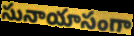
సునాయాసంగా